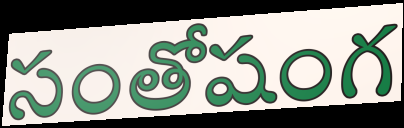
సంతోషంగ